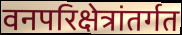
वनपरिक्षेत्रांतर्गत